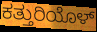
ಕತ್ತುರಿಯೊಳ್